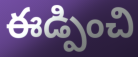
ఈడ్పించి